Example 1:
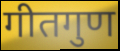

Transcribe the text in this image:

गीतगुण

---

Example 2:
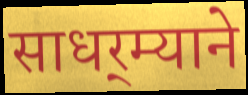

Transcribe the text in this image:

साधर्म्याने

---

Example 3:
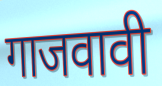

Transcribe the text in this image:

गाजवावी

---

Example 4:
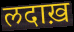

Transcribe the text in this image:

लदाख़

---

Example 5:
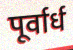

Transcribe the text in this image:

पूर्वार्ध